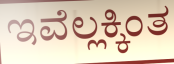
ಇವೆಲ್ಲಕ್ಕಿಂತ